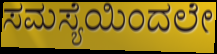
ಸಮಸ್ಯೆಯಿಂದಲೇ